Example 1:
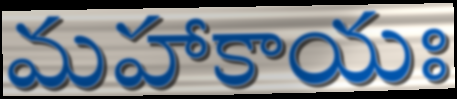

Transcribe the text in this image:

మహాకాయః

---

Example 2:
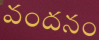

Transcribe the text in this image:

వందనం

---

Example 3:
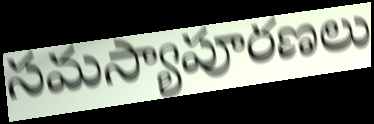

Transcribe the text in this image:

సమస్యాపూరణలు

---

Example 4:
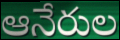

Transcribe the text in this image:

ఆనేరుల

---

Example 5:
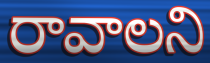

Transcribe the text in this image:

రావాలని